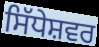
ਸਿੱਧੇਸ਼ਵਰ